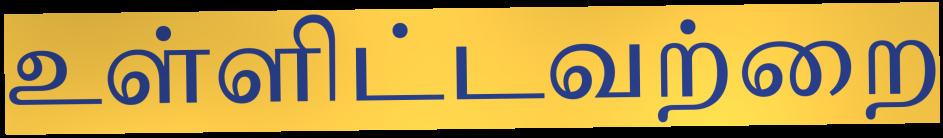
உள்ளிட்டவற்றை